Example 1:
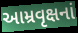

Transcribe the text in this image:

આમ્રવૃક્ષનાં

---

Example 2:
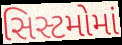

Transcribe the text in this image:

સિસ્ટમોમાં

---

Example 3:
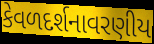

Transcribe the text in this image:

કેવળદર્શનાવરણીય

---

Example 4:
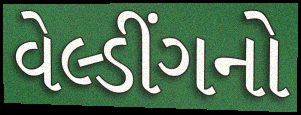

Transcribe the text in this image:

વેલ્ડીંગનો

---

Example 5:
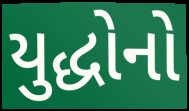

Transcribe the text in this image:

યુદ્ધોનો